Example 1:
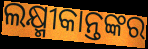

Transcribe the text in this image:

ଲକ୍ଷ୍ମୀକାନ୍ତଙ୍କର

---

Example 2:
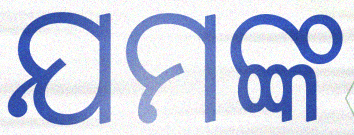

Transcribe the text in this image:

ଯମଙ୍କ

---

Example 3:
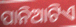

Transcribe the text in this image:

ପାନିଆଟିଏ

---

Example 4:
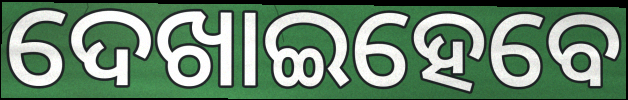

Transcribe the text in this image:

ଦେଖାଇହେବେ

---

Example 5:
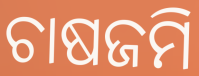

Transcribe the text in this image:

ଚାଷଜମି